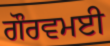
ਗੌਰਵਮਈ